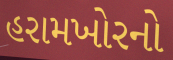
હરામખોરનો